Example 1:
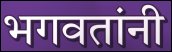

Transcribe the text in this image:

भगवतांनी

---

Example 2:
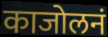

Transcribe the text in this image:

काजोलनं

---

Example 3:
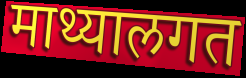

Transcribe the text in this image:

माथ्यालगत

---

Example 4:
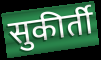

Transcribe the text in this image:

सुकीर्ती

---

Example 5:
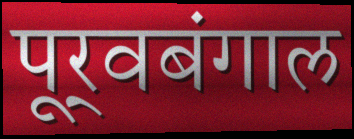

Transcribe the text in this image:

पूर्वबंगाल